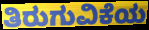
ತಿರುಗುವಿಕೆಯ